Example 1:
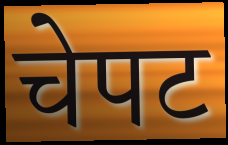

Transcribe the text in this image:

चेपट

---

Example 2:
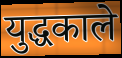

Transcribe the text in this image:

युद्धकाले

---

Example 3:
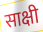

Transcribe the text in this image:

साक्षी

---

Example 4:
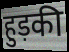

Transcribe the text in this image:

हुड़की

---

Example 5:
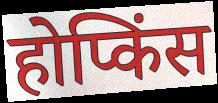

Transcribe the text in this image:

होप्किंस